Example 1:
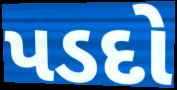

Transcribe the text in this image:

પડદો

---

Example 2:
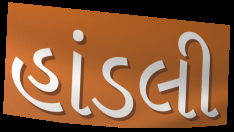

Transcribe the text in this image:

હાંડલી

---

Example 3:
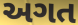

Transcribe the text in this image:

અગત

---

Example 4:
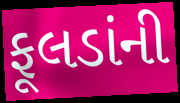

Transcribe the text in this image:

ફૂલડાંની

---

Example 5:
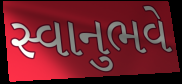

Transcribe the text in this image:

સ્વાનુભવે